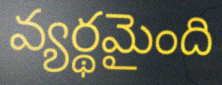
వ్యర్థమైంది